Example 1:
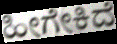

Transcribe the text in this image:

ಹೀಗೇಕಿದೆ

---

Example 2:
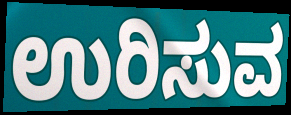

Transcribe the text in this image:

ಉರಿಸುವ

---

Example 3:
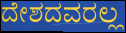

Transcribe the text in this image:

ದೇಶದವರಲ್ಲ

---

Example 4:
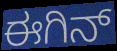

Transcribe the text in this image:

ಈಗಿನ್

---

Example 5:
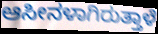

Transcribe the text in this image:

ಆಸೀನಳಾಗಿರುತ್ತಾಳೆ